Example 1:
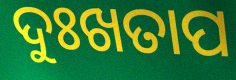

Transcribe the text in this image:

ଦୁଃଖତାପ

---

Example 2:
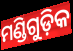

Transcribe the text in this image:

ମଣ୍ଡିଗୁଡ଼ିକ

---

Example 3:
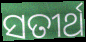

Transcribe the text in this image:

ସତୀର୍ଥ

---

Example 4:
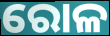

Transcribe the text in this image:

ରୋଳ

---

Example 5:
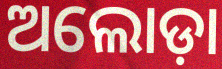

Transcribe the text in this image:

ଅଲୋଡ଼ା